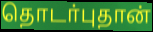
தொடர்புதான்